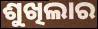
ଶୁଖିଲାର